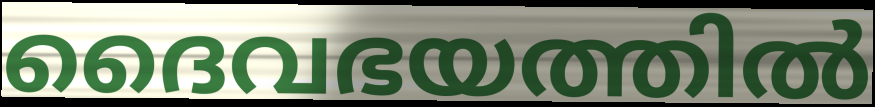
ദൈവഭയത്തിൽ